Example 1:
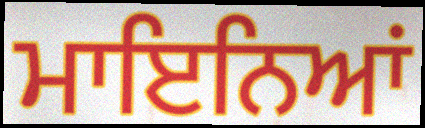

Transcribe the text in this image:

ਮਾਇਨਿਆਂ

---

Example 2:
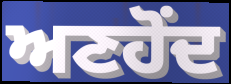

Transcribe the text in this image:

ਅਣਹੋਂਦ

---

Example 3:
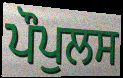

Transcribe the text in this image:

ਪੌਪੁਲਸ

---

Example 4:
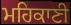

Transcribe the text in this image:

ਮਹਿਕਾਣੀ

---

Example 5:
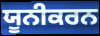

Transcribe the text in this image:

ਯੂਨੀਕਰਨ